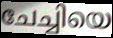
ചേച്ചിയെ